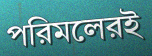
পরিমলেরই